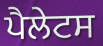
ਪੈਲੇਟਸ